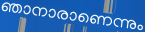
ഞാനാരാണെന്നും